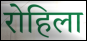
रोहिला